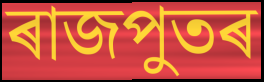
ৰাজপুতৰ